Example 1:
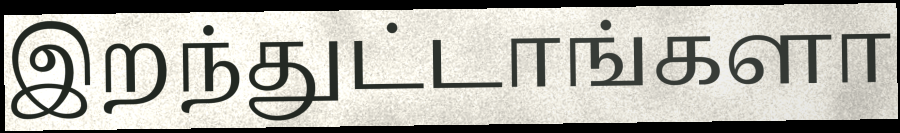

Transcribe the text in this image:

இறந்துட்டாங்களா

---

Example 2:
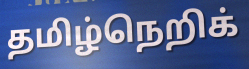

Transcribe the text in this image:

தமிழ்நெறிக்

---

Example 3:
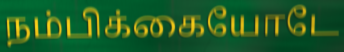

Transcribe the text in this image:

நம்பிக்கையோடே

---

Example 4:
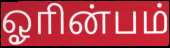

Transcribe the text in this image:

ஓரின்பம்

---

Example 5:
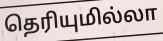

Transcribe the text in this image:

தெரியுமில்லா